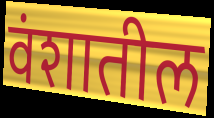
वंशातील